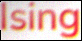
Ising